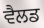
ਵੈਲਡ